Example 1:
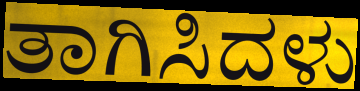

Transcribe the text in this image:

ತಾಗಿಸಿದಳು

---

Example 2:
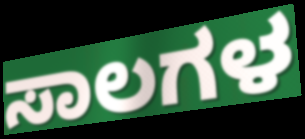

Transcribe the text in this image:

ಸಾಲಗಳ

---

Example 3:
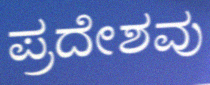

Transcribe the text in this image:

ಪ್ರದೇಶವು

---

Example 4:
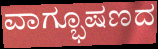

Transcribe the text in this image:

ವಾಗ್ಭೂಷಣದ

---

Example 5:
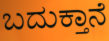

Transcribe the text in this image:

ಬದುಕ್ತಾನೆ